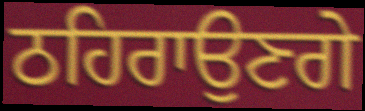
ਠਹਿਰਾਉਣਗੇ